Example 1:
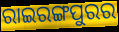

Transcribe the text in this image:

ରାଇରଙ୍ଗପୁରର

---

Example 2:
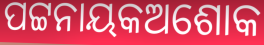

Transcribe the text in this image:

ପଟ୍ଟନାୟକଅଶୋକ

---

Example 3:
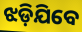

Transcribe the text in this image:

ଝଡ଼ିଯିବେ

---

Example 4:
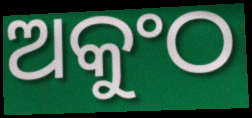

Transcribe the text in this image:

ଅକୁଂଠ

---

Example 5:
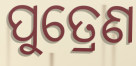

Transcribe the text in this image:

ପୁତ୍ରେଣ